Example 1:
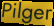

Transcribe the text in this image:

Pilger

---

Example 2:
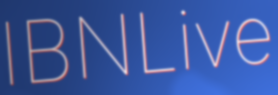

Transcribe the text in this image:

IBNLive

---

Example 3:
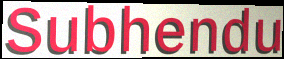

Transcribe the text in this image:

Subhendu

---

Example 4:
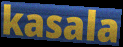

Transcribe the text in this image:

kasala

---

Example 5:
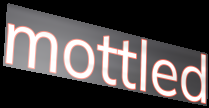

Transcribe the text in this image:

mottled